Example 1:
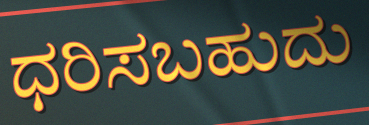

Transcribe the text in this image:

ಧರಿಸಬಹುದು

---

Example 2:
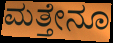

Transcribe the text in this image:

ಮತ್ತೇನೂ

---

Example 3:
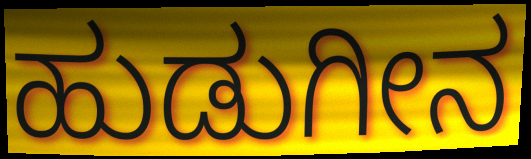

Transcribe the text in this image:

ಹುಡುಗೀನ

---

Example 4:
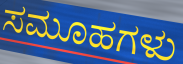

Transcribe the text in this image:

ಸಮೂಹಗಳು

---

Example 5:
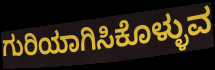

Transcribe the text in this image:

ಗುರಿಯಾಗಿಸಿಕೊಳ್ಳುವ